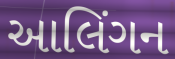
આલિંગન